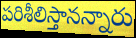
పరిశీలిస్తానన్నారు